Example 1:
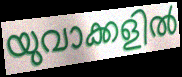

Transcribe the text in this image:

യുവാക്കളിൽ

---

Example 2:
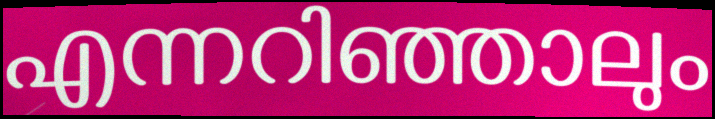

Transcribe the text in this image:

എന്നറിഞ്ഞാലും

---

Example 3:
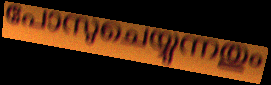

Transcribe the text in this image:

പോസുചെയ്യുന്നതും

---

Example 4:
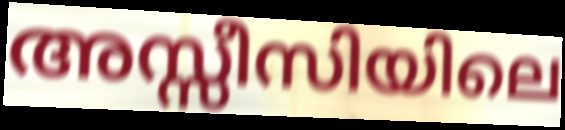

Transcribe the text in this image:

അസ്സീസിയിലെ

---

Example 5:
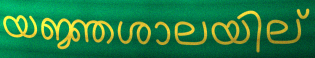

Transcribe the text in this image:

യജ്ഞശാലയില്